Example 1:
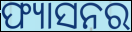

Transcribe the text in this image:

ଫ୍ୟାସନର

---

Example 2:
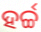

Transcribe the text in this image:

ହର୍ଚ୍ଚ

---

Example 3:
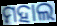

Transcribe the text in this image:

ମହାଲ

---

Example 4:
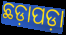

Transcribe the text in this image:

ଛଡ଼ାପଡ଼ା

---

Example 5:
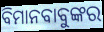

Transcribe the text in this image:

ବିମାନବାବୁଙ୍କର